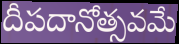
దీపదానోత్సవమే